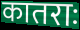
कातराः